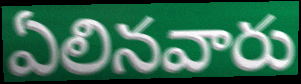
ఏలినవారు